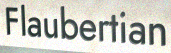
Flaubertian